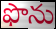
ఫొను